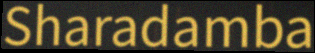
Sharadamba